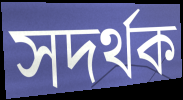
সদর্থক